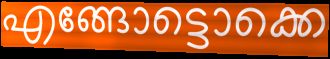
എങ്ങോട്ടൊക്കെ